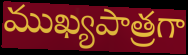
ముఖ్యపాత్రగా